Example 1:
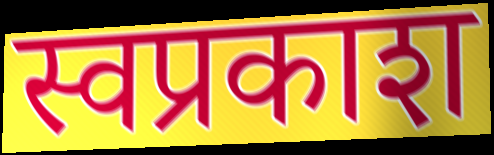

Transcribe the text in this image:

स्वप्रकाश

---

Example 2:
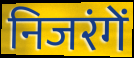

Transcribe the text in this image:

निजरंगें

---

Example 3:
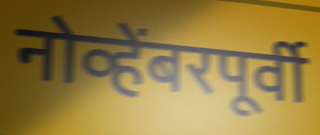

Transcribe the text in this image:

नोव्हेंबरपूर्वी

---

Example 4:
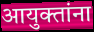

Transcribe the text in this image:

आयुक्‍तांना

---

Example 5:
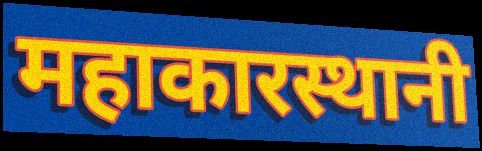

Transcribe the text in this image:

महाकारस्थानी